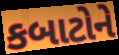
કબાટોને